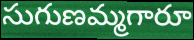
సుగుణమ్మగారూ